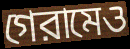
গেরামেও